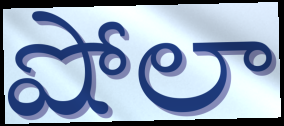
షోలా